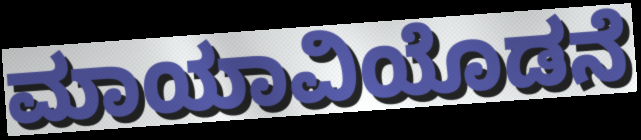
ಮಾಯಾವಿಯೊಡನೆ